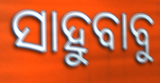
ସାହୁବାବୁ